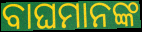
ବାଘମାନଙ୍କ